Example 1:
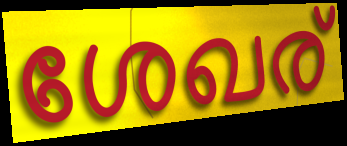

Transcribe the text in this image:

ശേഖര്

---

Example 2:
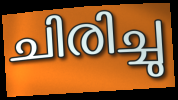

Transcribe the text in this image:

ചിരിച്ചു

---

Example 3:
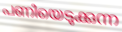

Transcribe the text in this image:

പണിയെടുക്കുന്ന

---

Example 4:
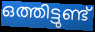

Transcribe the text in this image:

ഒത്തിട്ടുണ്ട്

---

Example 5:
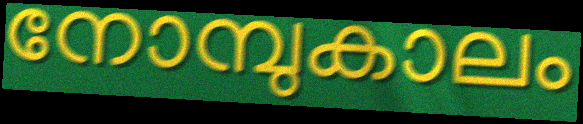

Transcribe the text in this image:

നോമ്പുകാലം